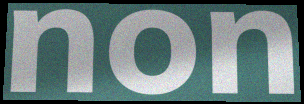
non